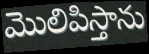
మొలిపిస్తాను